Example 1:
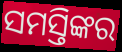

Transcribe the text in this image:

ସମସ୍ତିଙ୍କର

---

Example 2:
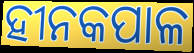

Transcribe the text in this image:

ହୀନକପାଳ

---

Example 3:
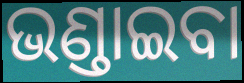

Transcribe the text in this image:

ଭଣ୍ଡାଇବା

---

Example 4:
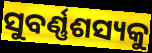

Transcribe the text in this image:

ସୁବର୍ଣ୍ଣଶସ୍ୟକୁ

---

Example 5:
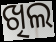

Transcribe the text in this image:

ଖିଲ